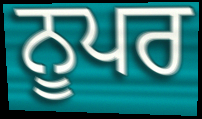
ਨੂਪਰ